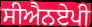
ਸੀਐਨਏਪੀ